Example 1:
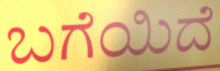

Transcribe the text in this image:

ಬಗೆಯಿದೆ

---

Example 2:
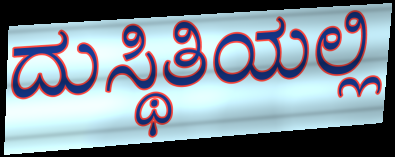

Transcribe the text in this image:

ದುಸ್ಥಿತಿಯಲ್ಲಿ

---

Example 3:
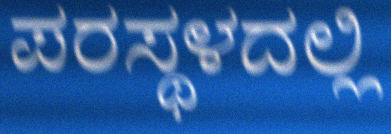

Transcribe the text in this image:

ಪರಸ್ಥಳದಲ್ಲಿ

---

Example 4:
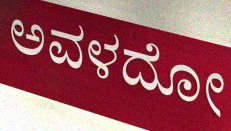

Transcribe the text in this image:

ಅವಳದೋ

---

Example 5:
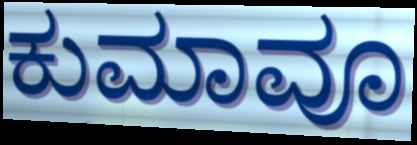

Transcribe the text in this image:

ಕುಮಾವೂ